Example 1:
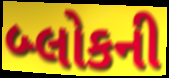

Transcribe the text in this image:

બ્લોકની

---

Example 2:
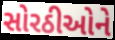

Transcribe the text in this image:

સોરઠીઓને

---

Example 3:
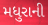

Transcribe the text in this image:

મધુરાની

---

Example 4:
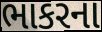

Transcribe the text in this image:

ભાકરના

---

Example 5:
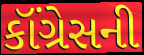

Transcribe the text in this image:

કૉંગ્રેસની